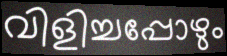
വിളിച്ചപ്പോഴും